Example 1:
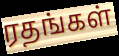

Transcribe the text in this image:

ரதங்கள்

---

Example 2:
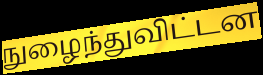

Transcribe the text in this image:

நுழைந்துவிட்டன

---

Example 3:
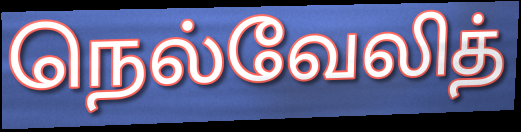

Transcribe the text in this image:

நெல்வேலித்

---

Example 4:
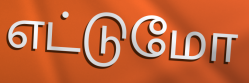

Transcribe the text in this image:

எட்டுமோ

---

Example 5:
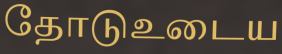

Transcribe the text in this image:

தோடுஉடைய